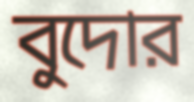
বুদোর